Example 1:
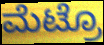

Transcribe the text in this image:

ಮೆಟ್ರೊ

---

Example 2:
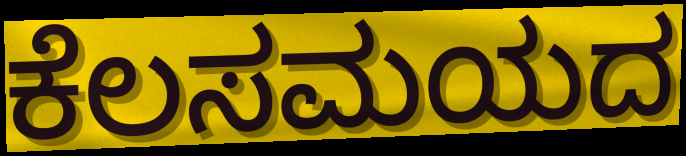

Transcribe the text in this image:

ಕೆಲಸಮಯದ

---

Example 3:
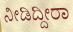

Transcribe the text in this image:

ನೀಡಿದ್ದೀರಾ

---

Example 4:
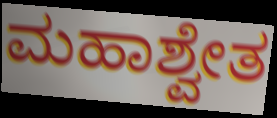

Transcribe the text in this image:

ಮಹಾಶ್ವೇತ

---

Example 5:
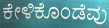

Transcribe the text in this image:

ಕೇಳಿಕೊಂಡೆವು